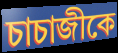
চাচাজীকে